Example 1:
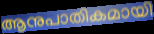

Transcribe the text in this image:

ആനുപാതികമായി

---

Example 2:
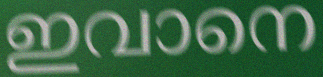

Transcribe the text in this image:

ഇവാനെ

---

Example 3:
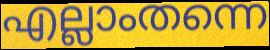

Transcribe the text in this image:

എല്ലാംതന്നെ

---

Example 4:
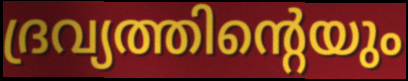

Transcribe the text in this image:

ദ്രവ്യത്തിന്റെയും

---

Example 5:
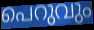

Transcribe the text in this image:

പെറുവും